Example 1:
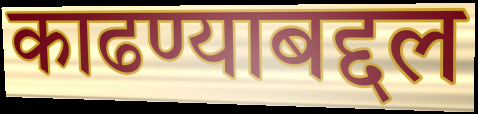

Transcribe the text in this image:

काढण्याबद्दल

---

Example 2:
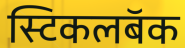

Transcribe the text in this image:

स्टिकलबॅक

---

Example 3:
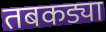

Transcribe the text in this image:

तबकड्या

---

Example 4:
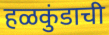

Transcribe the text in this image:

हळकुंडाची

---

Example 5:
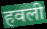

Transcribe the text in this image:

हवली